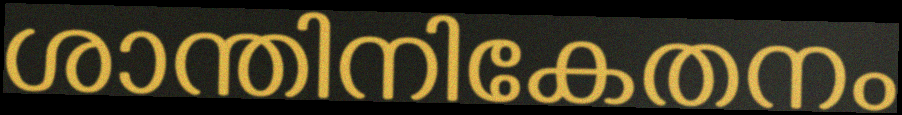
ശാന്തിനികേതനം